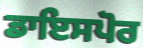
ਡਾਇਸਪੋਰ